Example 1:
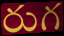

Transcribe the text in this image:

రుగ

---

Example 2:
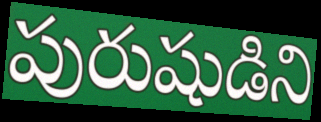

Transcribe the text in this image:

పురుషుడిని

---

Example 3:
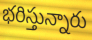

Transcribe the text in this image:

భరిస్తున్నారు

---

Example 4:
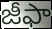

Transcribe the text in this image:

జీఫా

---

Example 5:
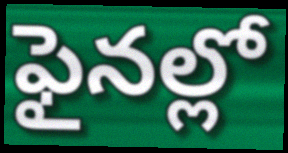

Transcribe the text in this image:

ఫైనల్లో